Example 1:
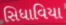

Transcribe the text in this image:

સિધાવિયા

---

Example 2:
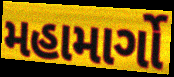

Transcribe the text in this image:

મહામાર્ગો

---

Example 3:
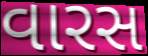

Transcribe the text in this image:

વારસ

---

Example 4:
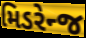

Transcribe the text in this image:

મિડરેન્જ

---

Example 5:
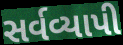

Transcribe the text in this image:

સર્વવ્યાપી